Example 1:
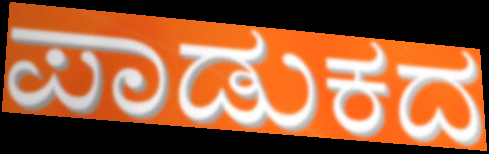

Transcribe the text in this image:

ಪಾಡುಕದ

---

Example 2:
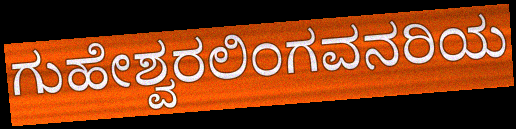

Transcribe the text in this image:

ಗುಹೇಶ್ವರಲಿಂಗವನರಿಯ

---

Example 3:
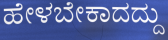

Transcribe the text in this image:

ಹೇಳಬೇಕಾದದ್ದು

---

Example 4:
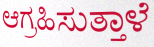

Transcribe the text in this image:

ಆಗ್ರಹಿಸುತ್ತಾಳೆ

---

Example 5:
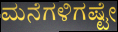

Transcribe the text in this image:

ಮನೆಗಳಿಗಷ್ಟೇ